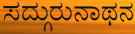
ಸದ್ಗುರುನಾಥನ